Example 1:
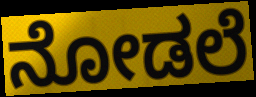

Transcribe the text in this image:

ನೋಡಲೆ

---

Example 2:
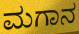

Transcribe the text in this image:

ಮಗಾನ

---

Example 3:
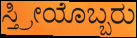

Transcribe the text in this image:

ಸ್ತ್ರೀಯೊಬ್ಬರು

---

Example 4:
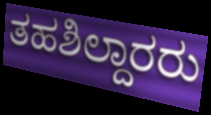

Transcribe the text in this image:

ತಹಶಿಲ್ದಾರರು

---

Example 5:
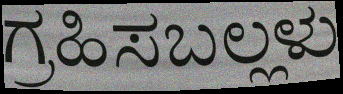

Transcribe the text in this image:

ಗ್ರಹಿಸಬಲ್ಲಳು